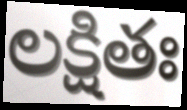
లక్షితః